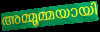
അമ്മൂമ്മയായി